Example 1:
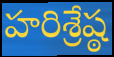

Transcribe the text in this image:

హరిశ్రేష్ఠ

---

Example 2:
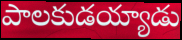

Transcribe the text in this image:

పాలకుడయ్యాడు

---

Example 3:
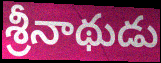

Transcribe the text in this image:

శ్రీనాథుడు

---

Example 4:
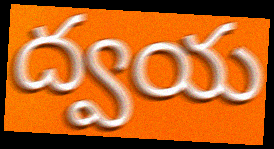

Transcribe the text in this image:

ద్వయ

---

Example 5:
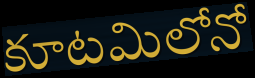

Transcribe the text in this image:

కూటమిలోనో